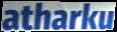
atharku